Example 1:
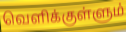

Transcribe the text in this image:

வெளிக்குள்ளும்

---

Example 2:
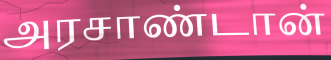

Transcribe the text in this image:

அரசாண்டான்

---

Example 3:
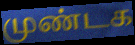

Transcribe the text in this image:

முண்டக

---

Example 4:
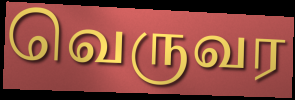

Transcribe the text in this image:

வெருவர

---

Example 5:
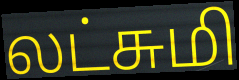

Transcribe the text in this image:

லட்சுமி